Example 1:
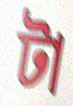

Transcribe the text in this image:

টা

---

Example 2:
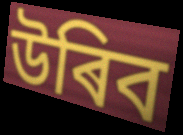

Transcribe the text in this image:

উৰিব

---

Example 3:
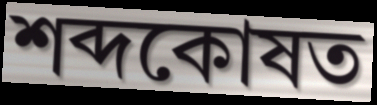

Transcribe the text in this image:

শব্দকোষত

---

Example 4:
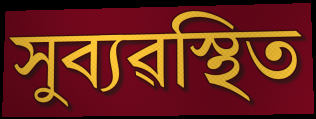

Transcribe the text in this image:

সুব্যৱস্থিত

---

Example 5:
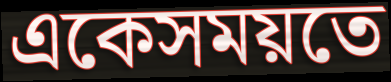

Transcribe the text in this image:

একেসময়তে